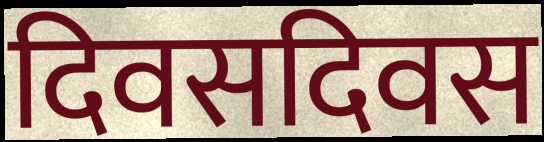
दिवसदिवस